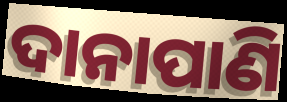
ଦାନାପାଣି